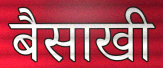
बैसाखी